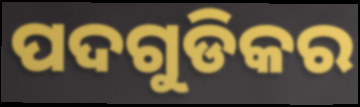
ପଦଗୁଡିକର